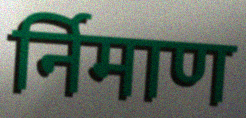
र्निमाण